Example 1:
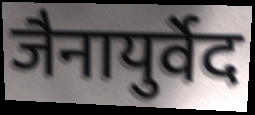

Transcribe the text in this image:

जैनायुर्वेद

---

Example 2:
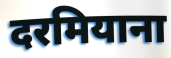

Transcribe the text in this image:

दरमियाना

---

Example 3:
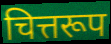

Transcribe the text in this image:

चित्तरूप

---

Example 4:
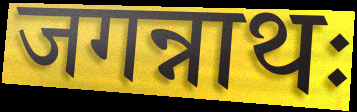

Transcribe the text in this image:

जगन्नाथः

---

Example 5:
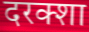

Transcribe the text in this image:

दरक्शा